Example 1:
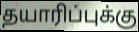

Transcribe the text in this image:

தயாரிப்புக்கு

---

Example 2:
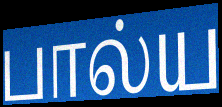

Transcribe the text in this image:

பால்ய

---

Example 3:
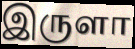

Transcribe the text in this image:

இருளா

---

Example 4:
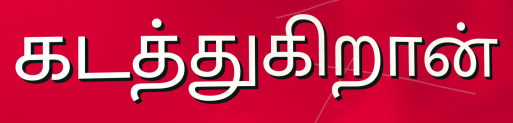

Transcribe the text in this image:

கடத்துகிறான்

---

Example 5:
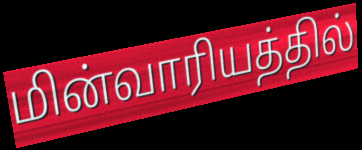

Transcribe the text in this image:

மின்வாரியத்தில்